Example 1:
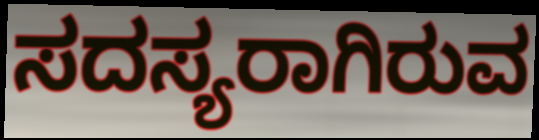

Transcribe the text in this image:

ಸದಸ್ಯರಾಗಿರುವ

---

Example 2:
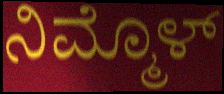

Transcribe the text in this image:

ನಿಮ್ಮೊಳ್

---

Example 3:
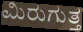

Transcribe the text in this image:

ಮಿರುಗುತ್ತ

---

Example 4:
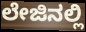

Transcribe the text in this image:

ಲೇಜಿನಲ್ಲಿ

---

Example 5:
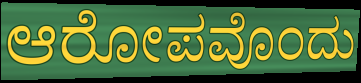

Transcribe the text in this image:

ಆರೋಪವೊಂದು